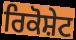
ਰਿਕੋਸ਼ੇਟ